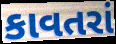
કાવતરાં